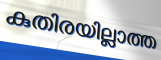
കുതിരയില്ലാത്ത